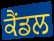
ਕੈਂਡਲ